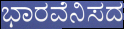
ಭಾರವೆನಿಸದ